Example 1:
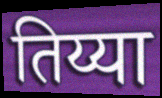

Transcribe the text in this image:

तिय्या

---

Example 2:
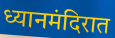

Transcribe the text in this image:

ध्यानमंदिरात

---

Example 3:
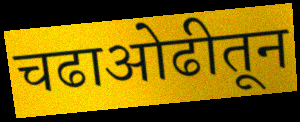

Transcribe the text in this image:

चढाओढीतून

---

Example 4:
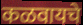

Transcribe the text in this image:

कळवायचे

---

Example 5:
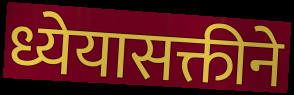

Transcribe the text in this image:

ध्येयासक्तीने